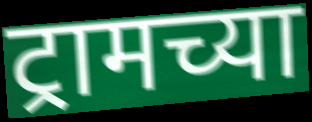
ट्रामच्या